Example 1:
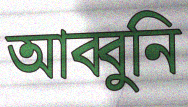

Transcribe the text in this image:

আব্বুনি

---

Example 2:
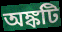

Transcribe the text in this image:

অঙ্কটি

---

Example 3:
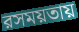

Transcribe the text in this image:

রসময়তায়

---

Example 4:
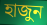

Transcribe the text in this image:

হাজুন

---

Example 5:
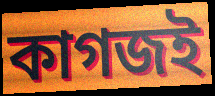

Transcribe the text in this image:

কাগজই